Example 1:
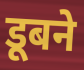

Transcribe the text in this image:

डूबने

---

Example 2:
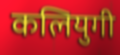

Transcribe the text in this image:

कलियुगी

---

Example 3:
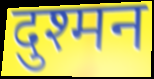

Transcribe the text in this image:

दुश्मन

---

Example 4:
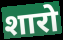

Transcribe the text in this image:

शारो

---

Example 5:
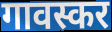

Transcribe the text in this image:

गावस्कर